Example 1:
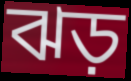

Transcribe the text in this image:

ঝড়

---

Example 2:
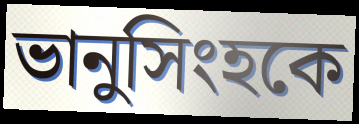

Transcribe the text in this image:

ভানুসিংহকে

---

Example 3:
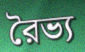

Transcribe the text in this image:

রৈভ্য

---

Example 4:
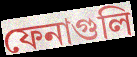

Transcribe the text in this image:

ফেনাগুলি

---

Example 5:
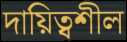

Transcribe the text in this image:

দায়িত্বশীল